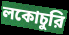
লকোচুরি